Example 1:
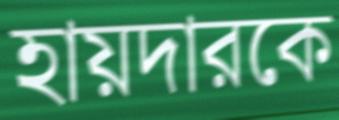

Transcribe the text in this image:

হায়দারকে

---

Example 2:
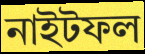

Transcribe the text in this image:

নাইটফল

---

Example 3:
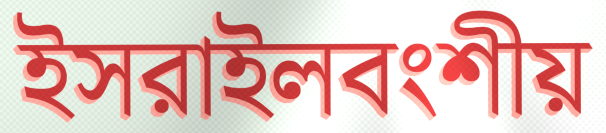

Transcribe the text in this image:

ইসরাইলবংশীয়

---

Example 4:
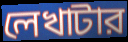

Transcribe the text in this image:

লেখাটার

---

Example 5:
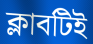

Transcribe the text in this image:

ক্লাবটিই